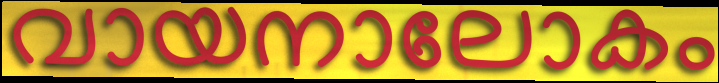
വായനാലോകം